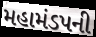
મહામંડપની